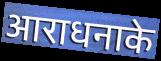
आराधनाके